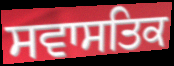
ਸਵਾਸਤਿਕ